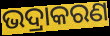
ଭଦ୍ରାକରଣ